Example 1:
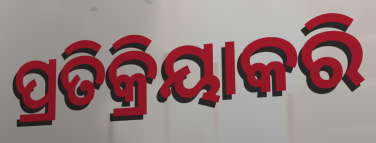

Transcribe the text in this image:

ପ୍ରତିକ୍ରିୟାକରି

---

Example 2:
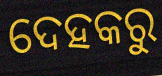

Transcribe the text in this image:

ଦେହକରୁ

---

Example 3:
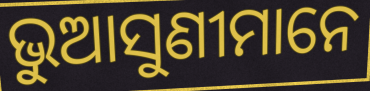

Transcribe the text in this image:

ଭୁଆସୁଣୀମାନେ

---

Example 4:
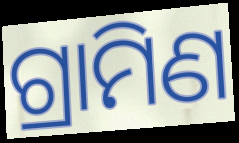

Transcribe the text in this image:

ଗ୍ରାମିଣ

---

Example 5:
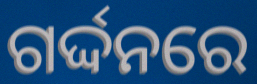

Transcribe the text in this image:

ଗର୍ଦ୍ଦନରେ